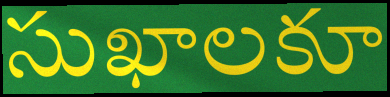
సుఖాలకూ